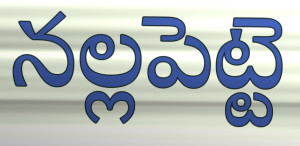
నల్లపెట్టె